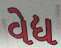
વેદ્ય